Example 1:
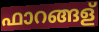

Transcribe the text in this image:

ഫാറങ്ങള്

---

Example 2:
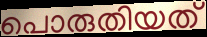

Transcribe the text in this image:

പൊരുതിയത്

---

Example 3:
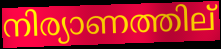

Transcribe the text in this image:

നിര്യാണത്തില്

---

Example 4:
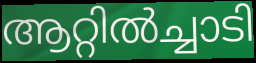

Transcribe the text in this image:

ആറ്റിൽച്ചാടി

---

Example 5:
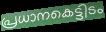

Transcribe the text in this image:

പ്രധാനകെട്ടിടം